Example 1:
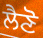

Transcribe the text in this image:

ਲੈਣੋ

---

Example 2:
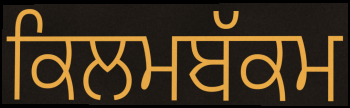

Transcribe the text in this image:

ਕਿਲਮਬੱਕਮ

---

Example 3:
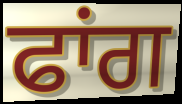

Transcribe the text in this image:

ਫਾਂਗ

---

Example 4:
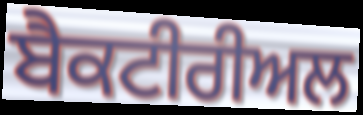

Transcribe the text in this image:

ਬੈਕਟੀਰੀਅਲ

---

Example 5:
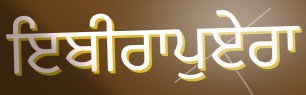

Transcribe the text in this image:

ਇਬੀਰਾਪੁਏਰਾ